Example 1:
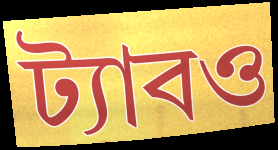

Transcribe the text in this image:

ট্যাবও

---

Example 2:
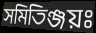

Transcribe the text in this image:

সমিতিঞ্জয়ঃ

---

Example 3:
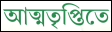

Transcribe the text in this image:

আত্মতৃপ্তিতে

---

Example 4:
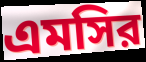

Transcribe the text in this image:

এমসির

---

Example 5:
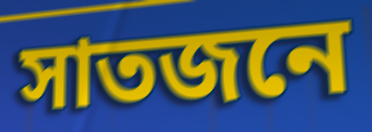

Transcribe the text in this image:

সাতজনে